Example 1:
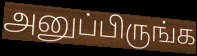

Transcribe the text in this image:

அனுப்பிருங்க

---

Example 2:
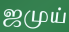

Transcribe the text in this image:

ஜமுய்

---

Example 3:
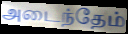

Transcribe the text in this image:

அடைந்தேம்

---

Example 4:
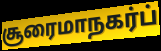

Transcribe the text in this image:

சூரைமாநகர்ப்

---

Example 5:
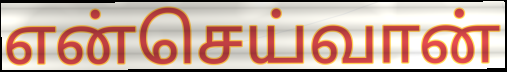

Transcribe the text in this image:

என்செய்வான்